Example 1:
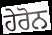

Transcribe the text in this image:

ਹੇਰੋਨ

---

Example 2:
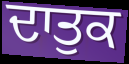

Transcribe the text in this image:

ਦਾਤੁਕ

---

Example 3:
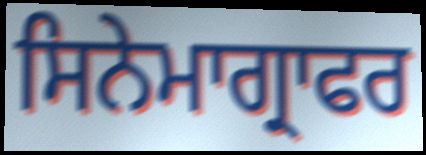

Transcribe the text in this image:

ਸਿਨੇਮਾਗ੍ਰਾਫਰ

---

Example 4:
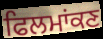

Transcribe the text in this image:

ਫਿਲਮਾਂਕਣ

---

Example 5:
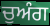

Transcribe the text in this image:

ਚੁਅੰਗ